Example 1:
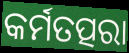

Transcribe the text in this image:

କର୍ମତତ୍ପରା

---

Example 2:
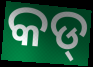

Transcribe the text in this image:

କଡ୍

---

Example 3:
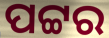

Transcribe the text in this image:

ପଟ୍ଟର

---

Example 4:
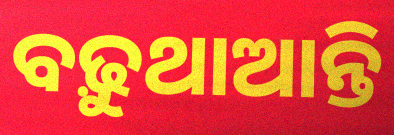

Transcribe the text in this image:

ବଢ଼ୁଥାଆନ୍ତି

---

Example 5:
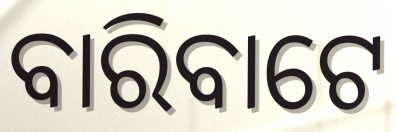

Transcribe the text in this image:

ବାରିବାଟେ